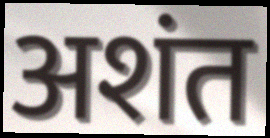
अशंत